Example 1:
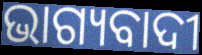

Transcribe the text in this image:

ଭାଗ୍ୟବାଦୀ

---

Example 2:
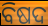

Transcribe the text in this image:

ବିଷଦ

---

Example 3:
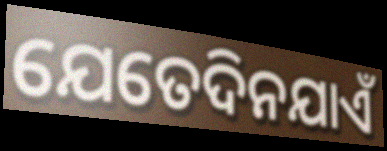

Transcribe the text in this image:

ଯେତେଦିନଯାଏଁ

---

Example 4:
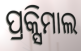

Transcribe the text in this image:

ପ୍ରକ୍ସିମାଲ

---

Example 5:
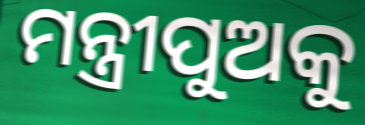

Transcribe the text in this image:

ମନ୍ତ୍ରୀପୁଅକୁ